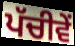
ਪੱਚੀਵੇਂ